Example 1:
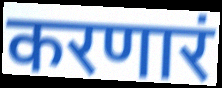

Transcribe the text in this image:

करणारं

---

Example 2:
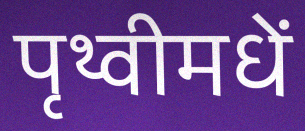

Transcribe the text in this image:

पृथ्वीमधें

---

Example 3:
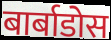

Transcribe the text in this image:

बार्बाडोस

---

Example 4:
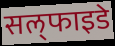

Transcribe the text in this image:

सल्फाइडे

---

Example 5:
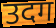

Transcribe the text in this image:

उदग